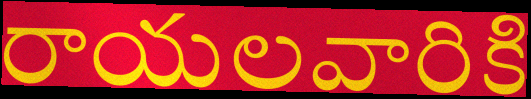
రాయలవారికి